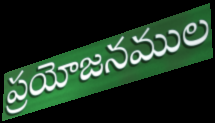
ప్రయోజనముల